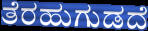
ತೆರಹುಗುಡದೆ